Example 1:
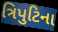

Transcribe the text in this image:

ત્રિપુટિના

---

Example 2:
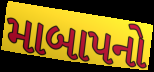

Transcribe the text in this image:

માબાપનો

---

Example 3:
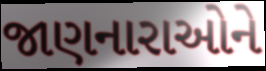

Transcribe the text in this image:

જાણનારાઓને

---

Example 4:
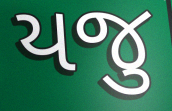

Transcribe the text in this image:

યજુ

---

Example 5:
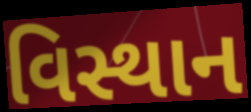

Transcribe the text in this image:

વિસ્થાન